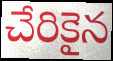
చేరికైన